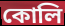
কোলি